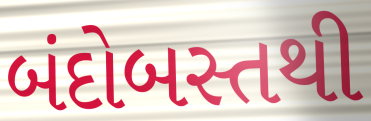
બંદોબસ્તથી